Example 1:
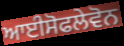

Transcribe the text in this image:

ਆਈਸੋਫਲੇਵੋਨ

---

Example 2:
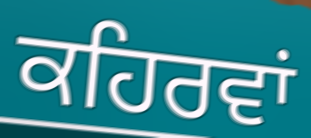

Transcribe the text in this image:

ਕਹਿਰਵਾਂ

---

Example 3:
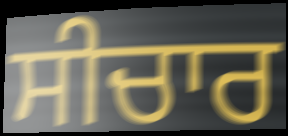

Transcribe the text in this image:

ਸੀਚਾਰ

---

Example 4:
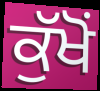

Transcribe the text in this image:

ਕੁੱਖੋਂ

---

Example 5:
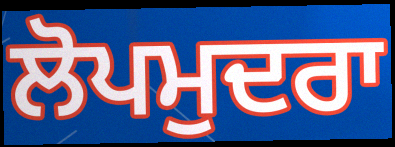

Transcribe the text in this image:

ਲੋਪਮੁਦਰਾ